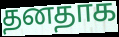
தனதாக